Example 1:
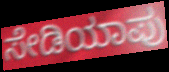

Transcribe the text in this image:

ಸೇಡಿಯಾಪು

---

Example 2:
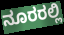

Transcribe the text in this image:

ನೂರರಲ್ಲಿ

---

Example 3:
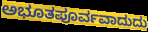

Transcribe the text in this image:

ಅಭೂತಪೂರ್ವವಾದುದು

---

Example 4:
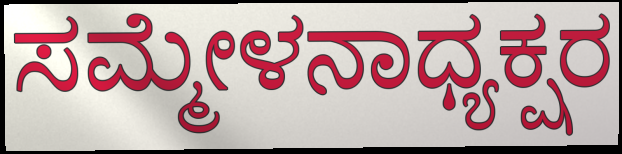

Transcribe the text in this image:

ಸಮ್ಮೇಳನಾಧ್ಯಕ್ಷರ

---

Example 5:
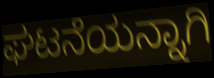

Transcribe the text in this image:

ಘಟನೆಯನ್ನಾಗಿ